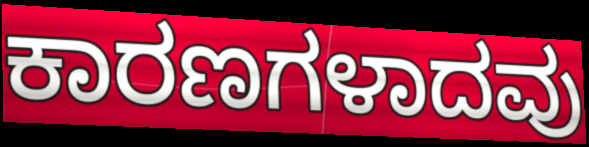
ಕಾರಣಗಳಾದವು